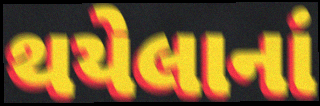
થયેલાનાં